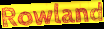
Rowland